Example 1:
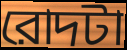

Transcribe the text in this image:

রোদটা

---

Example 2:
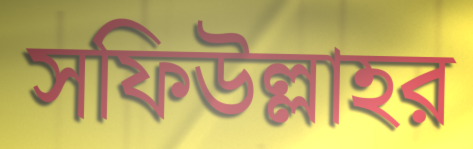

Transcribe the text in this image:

সফিউল্লাহর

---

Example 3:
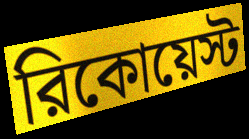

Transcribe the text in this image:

রিকোয়েস্ট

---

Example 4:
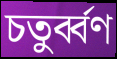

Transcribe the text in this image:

চতুর্ব্বণ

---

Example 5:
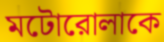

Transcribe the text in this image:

মটোরোলাকে